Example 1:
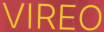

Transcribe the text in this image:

VIREO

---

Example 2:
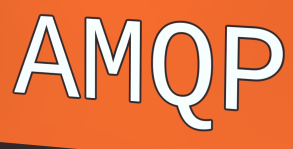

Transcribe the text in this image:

AMQP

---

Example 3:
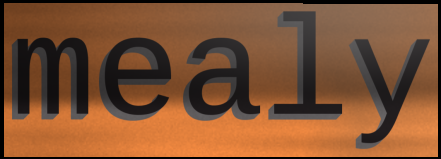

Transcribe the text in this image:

mealy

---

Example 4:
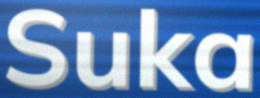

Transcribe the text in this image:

Suka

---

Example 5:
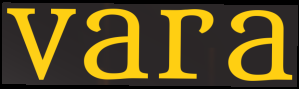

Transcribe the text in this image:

vara